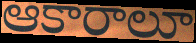
ఆకారాలూ